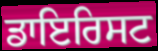
ਡਾਇਰਿਸਟ